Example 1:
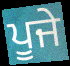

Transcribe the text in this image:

ਪੂਜੇ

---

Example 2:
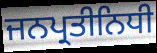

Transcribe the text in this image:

ਜਨਪ੍ਰਤੀਨਿਧੀ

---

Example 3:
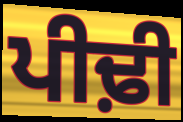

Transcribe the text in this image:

ਪੀਢ਼ੀ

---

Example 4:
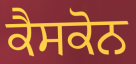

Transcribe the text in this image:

ਕੈਸਕੋਨ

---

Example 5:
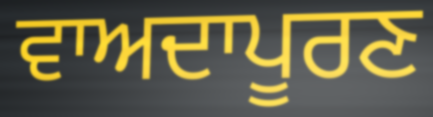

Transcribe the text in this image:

ਵਾਅਦਾਪੂਰਣ